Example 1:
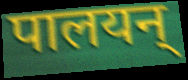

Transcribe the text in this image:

पालयन्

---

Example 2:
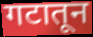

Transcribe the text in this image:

गटातून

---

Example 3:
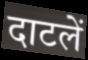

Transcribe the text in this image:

दाटलें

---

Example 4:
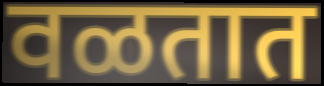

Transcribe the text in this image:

वळतात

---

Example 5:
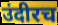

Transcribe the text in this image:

उंदीरच